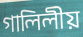
গালিলীয়